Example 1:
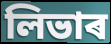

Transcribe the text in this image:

লিভাৰ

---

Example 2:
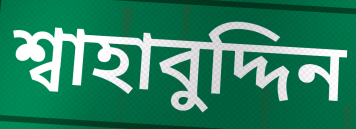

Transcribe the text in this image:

শ্বাহাবুদ্দিন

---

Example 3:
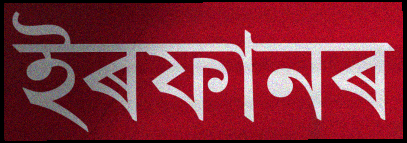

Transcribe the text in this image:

ইৰফানৰ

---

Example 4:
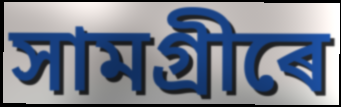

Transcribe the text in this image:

সামগ্ৰীৰে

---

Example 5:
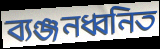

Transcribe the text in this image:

ব্যঞ্জনধ্বনিত